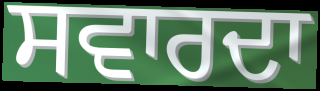
ਸਵਾਰਦਾ